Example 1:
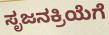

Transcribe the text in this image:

ಸೃಜನಕ್ರಿಯೆಗೆ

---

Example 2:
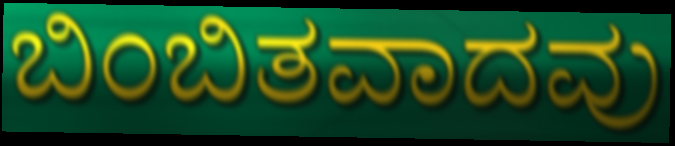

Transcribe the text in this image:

ಬಿಂಬಿತವಾದವು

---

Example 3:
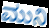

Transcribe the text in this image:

ಮುನಿ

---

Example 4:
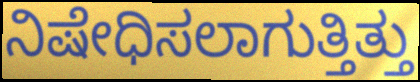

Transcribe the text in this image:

ನಿಷೇಧಿಸಲಾಗುತ್ತಿತ್ತು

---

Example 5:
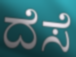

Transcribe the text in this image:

ದೆಸೆ